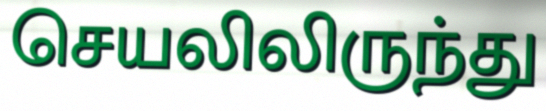
செயலிலிருந்து